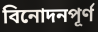
বিনোদনপূর্ণ